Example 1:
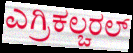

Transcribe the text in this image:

ಎಗ್ರಿಕಲ್ಚರಲ್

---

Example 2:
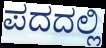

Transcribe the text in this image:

ಪದದಲ್ಲಿ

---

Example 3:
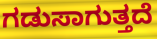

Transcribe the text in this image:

ಗಡುಸಾಗುತ್ತದೆ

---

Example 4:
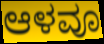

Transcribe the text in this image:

ಆಳವೂ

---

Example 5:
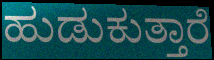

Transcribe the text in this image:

ಹುಡುಕುತ್ತಾರೆ